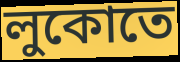
লুকোতে